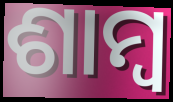
ଶାମ୍ୱ